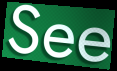
See